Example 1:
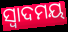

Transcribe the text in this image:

ସ୍ଵାଦମୟ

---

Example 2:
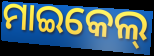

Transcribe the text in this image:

ମାଇକେଲ୍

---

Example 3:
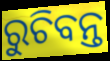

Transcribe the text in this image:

ରୁଚିବନ୍ତ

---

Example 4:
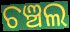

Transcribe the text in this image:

ଚଞ୍ଚଲ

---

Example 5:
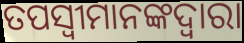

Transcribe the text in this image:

ତପସ୍ୱୀମାନଙ୍କଦ୍ୱାରା